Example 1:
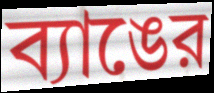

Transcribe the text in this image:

ব্যাঙের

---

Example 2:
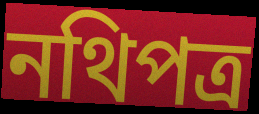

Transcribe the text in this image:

নথিপত্র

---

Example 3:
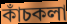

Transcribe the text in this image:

কাঁচকলা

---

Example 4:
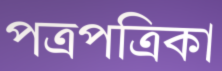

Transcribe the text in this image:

পত্রপত্রিকা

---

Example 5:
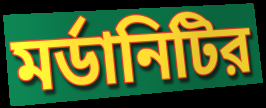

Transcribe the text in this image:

মর্ডানিটির